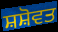
ਸ਼ਸ਼ੋਵਤ